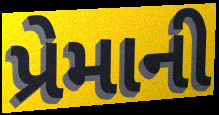
પ્રેમાની